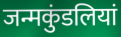
जन्मकुंडलियां